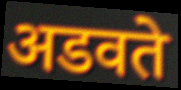
अडवते